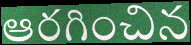
ఆరగించిన